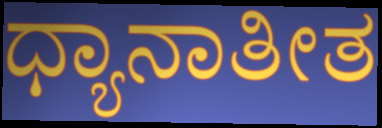
ಧ್ಯಾನಾತೀತ